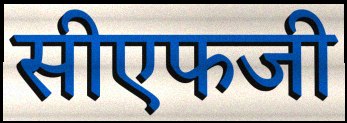
सीएफजी